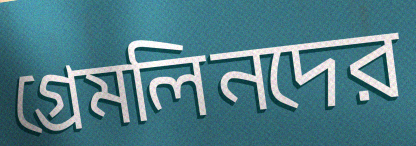
গ্রেমলিনদের